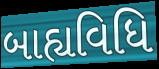
બાહ્યવિધિ